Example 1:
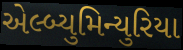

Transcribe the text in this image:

એલ્બ્યુમિન્યુરિયા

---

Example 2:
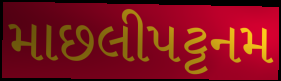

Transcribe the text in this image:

માછલીપટ્ટનમ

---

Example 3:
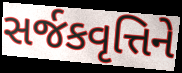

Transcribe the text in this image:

સર્જકવૃત્તિને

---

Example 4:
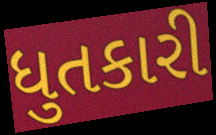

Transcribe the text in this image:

ધુતકારી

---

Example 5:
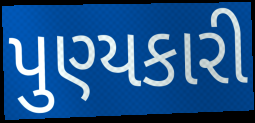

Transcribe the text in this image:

પુણ્યકારી